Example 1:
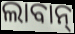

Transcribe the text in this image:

ଲାବାନ୍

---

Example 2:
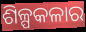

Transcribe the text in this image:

ଶିଳ୍ପକଳାର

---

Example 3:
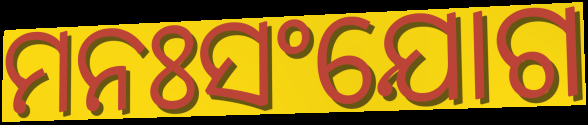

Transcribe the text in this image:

ମନଃସଂଯୋଗ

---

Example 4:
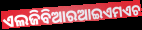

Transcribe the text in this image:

ଏଲଜିବିଆରଆଇଏମଏଚ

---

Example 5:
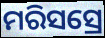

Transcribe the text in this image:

ମରିସସ୍ରେ